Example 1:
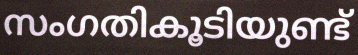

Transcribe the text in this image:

സംഗതികൂടിയുണ്ട്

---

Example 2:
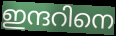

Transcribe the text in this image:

ഇന്ദറിനെ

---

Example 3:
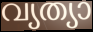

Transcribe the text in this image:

വ്യത്യാ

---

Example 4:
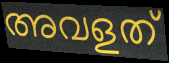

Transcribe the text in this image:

അവളത്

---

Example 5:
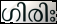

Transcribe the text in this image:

ഗിരിഃ